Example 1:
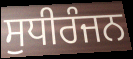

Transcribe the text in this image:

ਸੁਧੀਰੰਜਨ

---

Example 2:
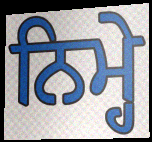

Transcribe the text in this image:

ਨਿਮ੍ਹੇ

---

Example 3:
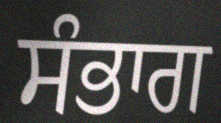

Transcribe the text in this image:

ਸੰਭਾਗ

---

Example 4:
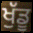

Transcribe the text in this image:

ਖੁੱਡੂ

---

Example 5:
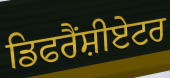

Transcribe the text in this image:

ਡਿਫਰੈਂਸ਼ੀਏਟਰ